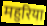
महुरिया